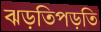
ঝড়তিপড়তি